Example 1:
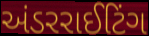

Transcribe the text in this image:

અંડરરાઈટિંગ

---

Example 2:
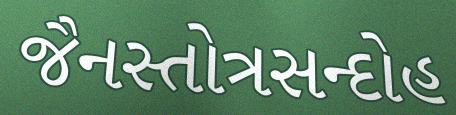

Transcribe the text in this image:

જૈનસ્તોત્રસન્દોહ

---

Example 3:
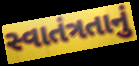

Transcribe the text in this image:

સ્વાતંત્રતાનું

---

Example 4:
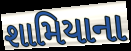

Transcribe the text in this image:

શામિયાના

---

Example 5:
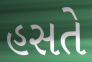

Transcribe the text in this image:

હસતે